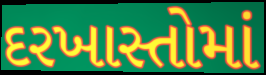
દરખાસ્તોમાં